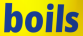
boils